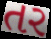
તર